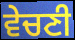
ਵੇਚਣੀ